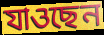
যাওছেন